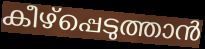
കീഴ്പ്പെടുത്താൻ